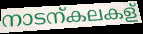
നാടന്കലകള്